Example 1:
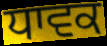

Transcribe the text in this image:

ਧਾਵਕ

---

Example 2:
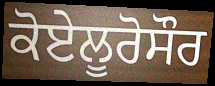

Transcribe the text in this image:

ਕੋਏਲੂਰੋਸੌਰ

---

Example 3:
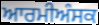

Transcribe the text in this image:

ਆਰਮੀਅੰਸਕ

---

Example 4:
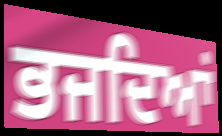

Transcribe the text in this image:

ਭਜਦਿਆਂ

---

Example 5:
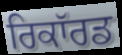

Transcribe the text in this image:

ਰਿਕਾੱਰਡ